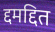
द्दमद्दित